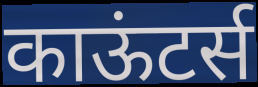
काऊंटर्स